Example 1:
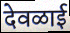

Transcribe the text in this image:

देवळाई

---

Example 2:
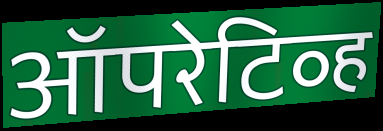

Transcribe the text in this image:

ऑपरेटिव्ह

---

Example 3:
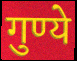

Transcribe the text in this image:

गुण्ये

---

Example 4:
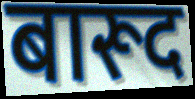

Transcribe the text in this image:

बारूद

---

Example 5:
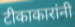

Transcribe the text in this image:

टीकाकारांनी